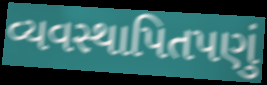
વ્યવસ્થાપિતપણું